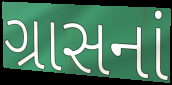
ગ્રાસનાં